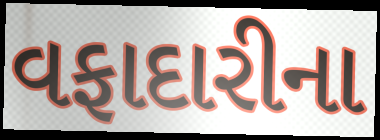
વફાદારીના